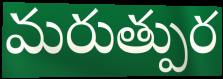
మరుత్పుర